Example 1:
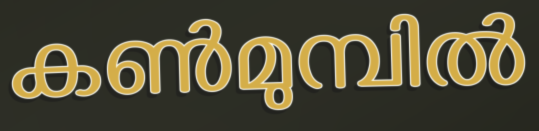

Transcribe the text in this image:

കൺമുമ്പിൽ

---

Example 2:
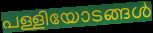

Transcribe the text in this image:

പള്ളിയോടങ്ങൾ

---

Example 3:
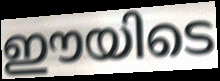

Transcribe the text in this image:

ഈയിടെ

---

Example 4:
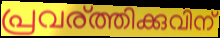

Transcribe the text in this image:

പ്രവര്ത്തിക്കുവിന്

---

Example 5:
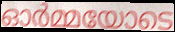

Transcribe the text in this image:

ഓർമ്മയോടെ